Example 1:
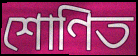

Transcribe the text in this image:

শোণিত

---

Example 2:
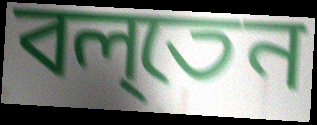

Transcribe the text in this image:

বল্‌তেন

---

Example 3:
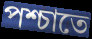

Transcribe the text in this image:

পশ্চাতে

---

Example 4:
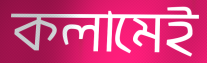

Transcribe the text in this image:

কলামেই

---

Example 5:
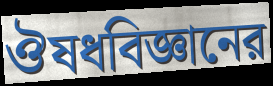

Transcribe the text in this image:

ঔষধবিজ্ঞানের